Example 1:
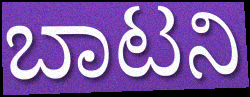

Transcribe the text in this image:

ಬಾಟನಿ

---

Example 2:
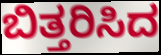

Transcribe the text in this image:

ಬಿತ್ತರಿಸಿದ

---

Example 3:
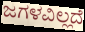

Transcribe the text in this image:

ಜಗಳವಿಲ್ಲದೆ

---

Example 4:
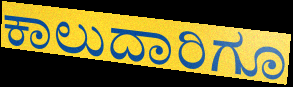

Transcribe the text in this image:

ಕಾಲುದಾರಿಗೂ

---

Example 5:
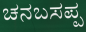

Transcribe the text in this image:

ಚನಬಸಪ್ಪ